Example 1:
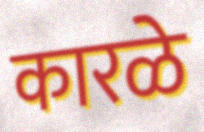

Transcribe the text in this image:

कारळे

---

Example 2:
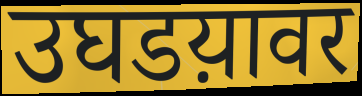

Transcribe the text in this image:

उघडय़ावर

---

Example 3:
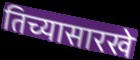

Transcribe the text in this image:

तिच्यासारखे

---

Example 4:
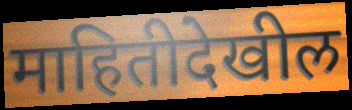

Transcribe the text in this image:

माहितीदेखील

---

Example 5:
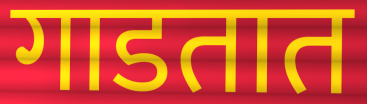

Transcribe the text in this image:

गाडतात